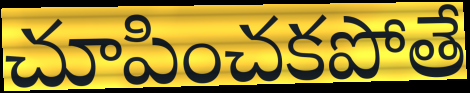
చూపించకపోతే